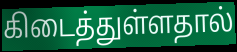
கிடைத்துள்ளதால்